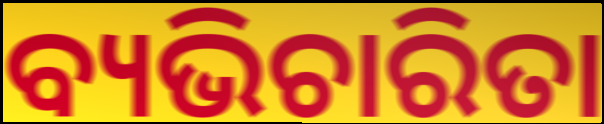
ବ୍ୟଭିଚାରିତା